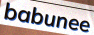
babunee